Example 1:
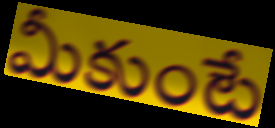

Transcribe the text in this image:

మీకుంటే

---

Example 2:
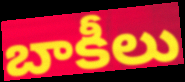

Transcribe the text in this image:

బాకీలు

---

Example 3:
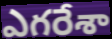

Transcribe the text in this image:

ఎగరేశా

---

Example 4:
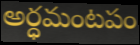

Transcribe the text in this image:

అర్ధమంటపం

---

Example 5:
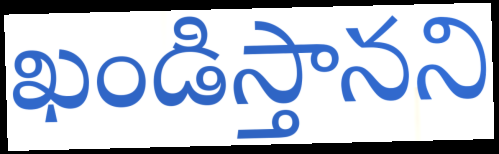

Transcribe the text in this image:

ఖండిస్తానని